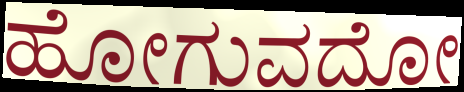
ಹೋಗುವದೋ